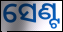
ସେଣ୍ଟ